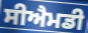
ਸੀਐਮਡੀ